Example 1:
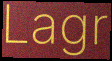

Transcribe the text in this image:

Lagr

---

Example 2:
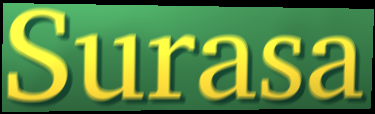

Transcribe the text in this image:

Surasa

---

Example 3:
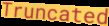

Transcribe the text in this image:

Truncated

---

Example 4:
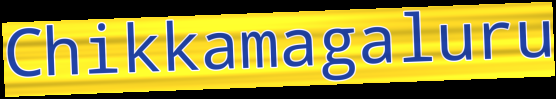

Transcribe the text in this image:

Chikkamagaluru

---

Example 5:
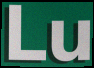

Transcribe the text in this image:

Lu